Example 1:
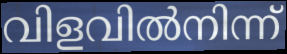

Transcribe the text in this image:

വിളവിൽനിന്ന്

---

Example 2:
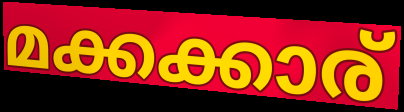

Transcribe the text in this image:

മക്കക്കാര്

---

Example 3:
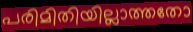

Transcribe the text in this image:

പരിമിതിയില്ലാത്തതോ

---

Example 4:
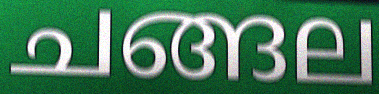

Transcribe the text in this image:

ചങ്ങല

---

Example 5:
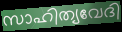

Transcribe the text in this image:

സാഹിത്യവേദി